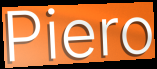
Piero